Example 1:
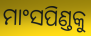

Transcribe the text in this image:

ମାଂସପିଣ୍ଡକୁ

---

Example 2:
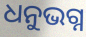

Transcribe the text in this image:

ଧନୁଭଗ୍ନ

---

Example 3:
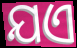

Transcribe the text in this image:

ଯଏ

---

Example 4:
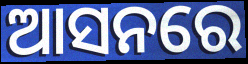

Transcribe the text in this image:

ଆସନରେ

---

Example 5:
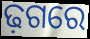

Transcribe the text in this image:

ଢ଼ଗରେ